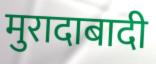
मुरादाबादी